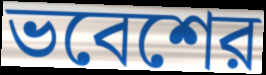
ভবেশের